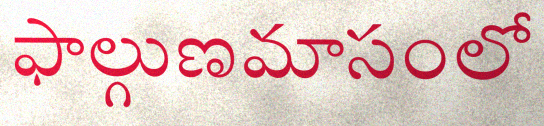
ఫాల్గుణమాసంలో